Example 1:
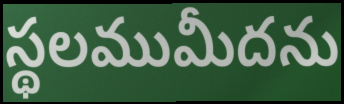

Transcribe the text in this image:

స్థలముమీదను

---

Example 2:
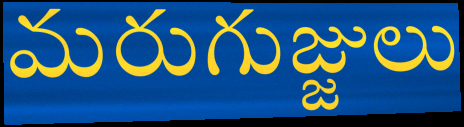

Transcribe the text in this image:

మరుగుజ్జులు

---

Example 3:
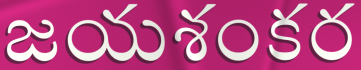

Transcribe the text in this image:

జయశంకర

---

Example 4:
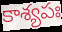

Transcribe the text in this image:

కాశ్యపః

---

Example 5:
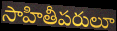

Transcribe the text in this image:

సాహితీపరులూ